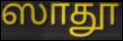
ஸாதூ